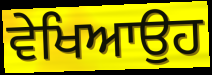
ਵੇਖਿਆਉਹ